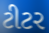
ટીટર